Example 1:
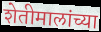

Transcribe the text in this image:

शेतीमालांच्या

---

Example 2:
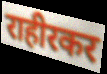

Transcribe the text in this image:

राहीरकर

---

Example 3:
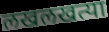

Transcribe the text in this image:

लखलखत्या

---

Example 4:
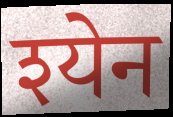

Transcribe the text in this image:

श्येन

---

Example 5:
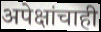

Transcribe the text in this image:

अपेक्षांचाही